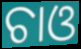
ଚାଓ